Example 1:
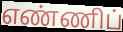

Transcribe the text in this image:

எண்ணிப்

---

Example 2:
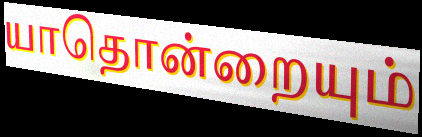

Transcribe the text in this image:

யாதொன்றையும்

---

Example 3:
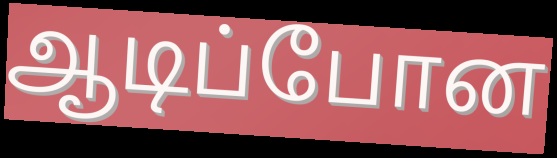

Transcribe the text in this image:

ஆடிப்போன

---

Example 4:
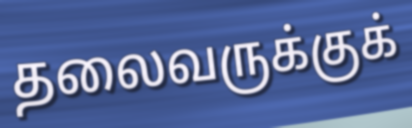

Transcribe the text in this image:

தலைவருக்குக்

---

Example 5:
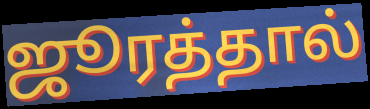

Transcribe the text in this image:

ஜூரத்தால்